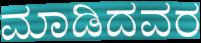
ಮಾಡಿದವರ